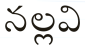
నల్లవి